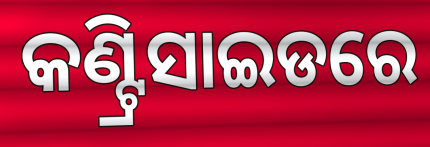
କଣ୍ଟ୍ରିସାଇଡରେ